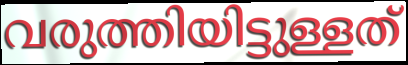
വരുത്തിയിട്ടുള്ളത്